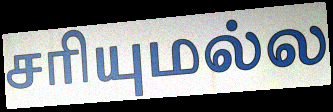
சரியுமல்ல